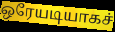
ஒரேயடியாகச்